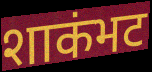
शाकंभट